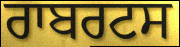
ਰਾਬਰਟਸ